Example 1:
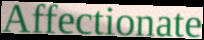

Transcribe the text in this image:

Affectionate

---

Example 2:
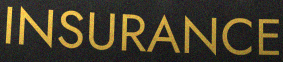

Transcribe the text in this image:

INSURANCE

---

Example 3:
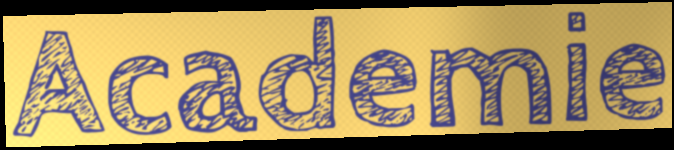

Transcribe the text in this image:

Academie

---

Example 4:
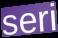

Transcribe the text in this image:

seri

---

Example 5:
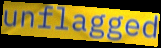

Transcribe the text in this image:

unflagged